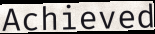
Achieved